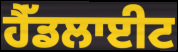
ਹੈੱਡਲਾਈਟ